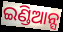
ଇଣ୍ଡିଆନ୍ସ